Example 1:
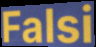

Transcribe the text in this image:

Falsi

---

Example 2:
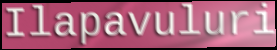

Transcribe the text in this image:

Ilapavuluri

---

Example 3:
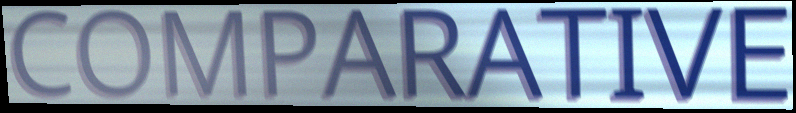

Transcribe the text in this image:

COMPARATIVE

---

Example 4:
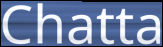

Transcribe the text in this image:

Chatta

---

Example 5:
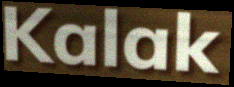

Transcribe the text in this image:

Kalak